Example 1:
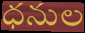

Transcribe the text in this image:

ధనుల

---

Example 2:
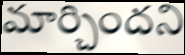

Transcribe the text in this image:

మార్చిందని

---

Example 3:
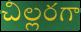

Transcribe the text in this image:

చిల్లరగా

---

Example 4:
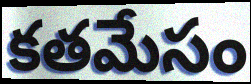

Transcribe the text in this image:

కతమేసం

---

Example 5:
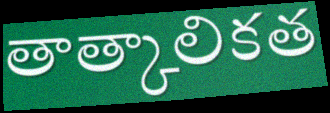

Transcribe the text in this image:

తాత్కాలికత